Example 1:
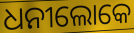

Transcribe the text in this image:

ଧନୀଲୋକେ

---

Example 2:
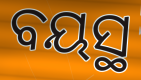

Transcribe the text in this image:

ବୟସ୍ଥ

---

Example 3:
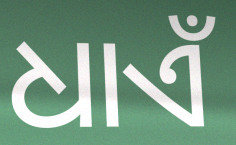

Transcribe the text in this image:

ଧାଏଁ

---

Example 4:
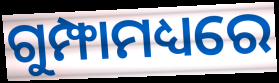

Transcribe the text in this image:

ଗୁମ୍ଫାମଧ୍ୟରେ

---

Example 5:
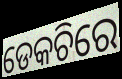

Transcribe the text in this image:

ଡେକଚିରେ